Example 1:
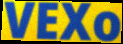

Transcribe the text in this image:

VEXo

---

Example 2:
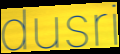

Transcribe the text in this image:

dusri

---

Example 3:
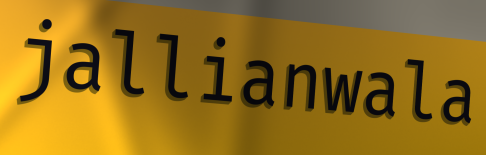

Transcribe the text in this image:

jallianwala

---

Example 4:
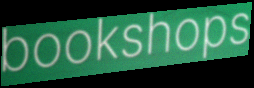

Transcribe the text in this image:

bookshops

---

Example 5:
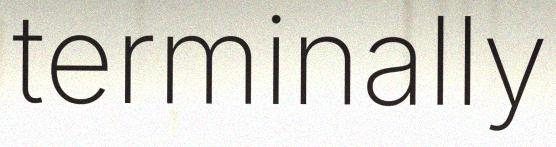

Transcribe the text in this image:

terminally